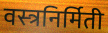
वस्त्रनिर्मिती